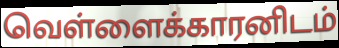
வெள்ளைக்காரனிடம்